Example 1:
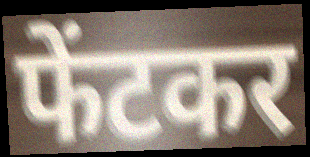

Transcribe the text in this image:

फेंटकर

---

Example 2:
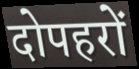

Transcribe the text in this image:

दोपहरों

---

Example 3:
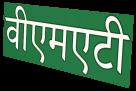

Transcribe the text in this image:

वीएमएटी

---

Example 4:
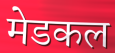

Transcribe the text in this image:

मेडकल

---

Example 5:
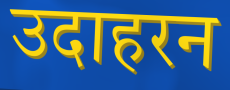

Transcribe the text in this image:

उदाहरन